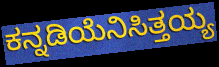
ಕನ್ನಡಿಯೆನಿಸಿತ್ತಯ್ಯ